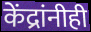
केंद्रांनीही